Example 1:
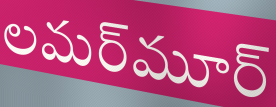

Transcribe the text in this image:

లమర్‌మూర్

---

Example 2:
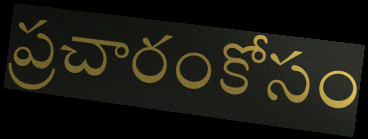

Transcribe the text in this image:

ప్రచారంకోసం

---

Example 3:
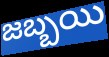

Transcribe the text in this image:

జబ్బయి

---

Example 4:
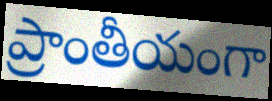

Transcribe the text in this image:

ప్రాంతీయంగా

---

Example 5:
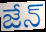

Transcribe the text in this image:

జేన్